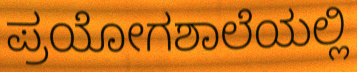
ಪ್ರಯೋಗಶಾಲೆಯಲ್ಲಿ